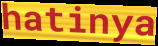
hatinya